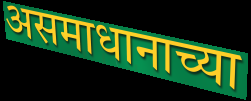
असमाधानाच्या